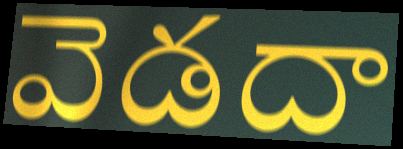
వెడదా